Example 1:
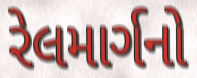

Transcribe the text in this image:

રેલમાર્ગનો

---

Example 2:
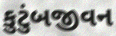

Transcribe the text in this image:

કુટુંબજીવન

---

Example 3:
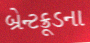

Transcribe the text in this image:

બ્રેન્ટક્રૂડના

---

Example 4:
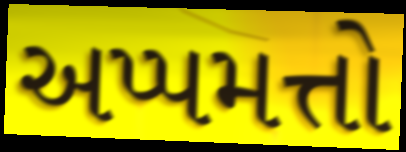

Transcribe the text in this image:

અપ્પમત્તો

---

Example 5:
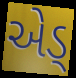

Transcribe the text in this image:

એડ્